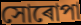
সোৰোপা